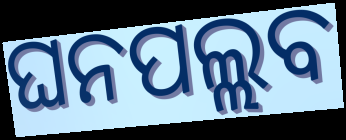
ଘନପଲ୍ଲବ